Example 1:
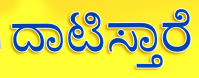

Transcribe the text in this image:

ದಾಟಿಸ್ತಾರೆ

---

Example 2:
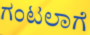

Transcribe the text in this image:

ಗಂಟಲಾಗೆ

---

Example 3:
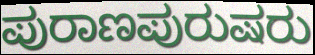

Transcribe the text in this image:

ಪುರಾಣಪುರುಷರು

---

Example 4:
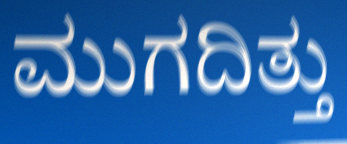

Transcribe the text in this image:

ಮುಗದಿತ್ತು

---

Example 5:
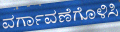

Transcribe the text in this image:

ವರ್ಗಾವಣೆಗೊಳಿಸಿ